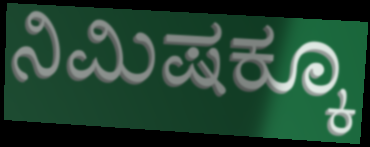
ನಿಮಿಷಕ್ಕೂ